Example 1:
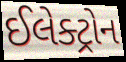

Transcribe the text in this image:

ઈલેક્ટ્રોન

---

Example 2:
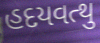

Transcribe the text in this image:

હદયવત્થુ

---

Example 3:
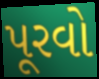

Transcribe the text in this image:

પૂરવો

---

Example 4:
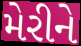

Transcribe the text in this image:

મેરીને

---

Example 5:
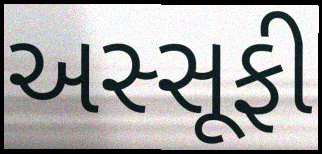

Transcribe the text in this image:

અસ્સૂફી